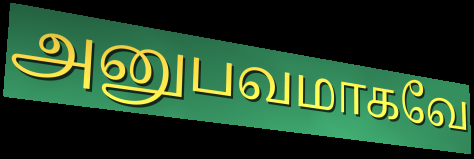
அனுபவமாகவே